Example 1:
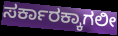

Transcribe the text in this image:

ಸರ್ಕಾರಕ್ಕಾಗಲೀ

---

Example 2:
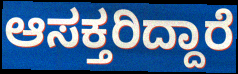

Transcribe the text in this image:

ಆಸಕ್ತರಿದ್ದಾರೆ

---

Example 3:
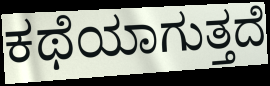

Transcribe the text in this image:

ಕಥೆಯಾಗುತ್ತದೆ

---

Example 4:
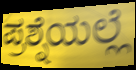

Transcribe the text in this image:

ಪ್ರಶ್ನೆಯಲ್ಲೆ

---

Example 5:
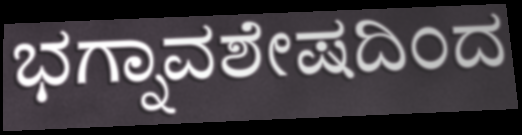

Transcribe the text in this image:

ಭಗ್ನಾವಶೇಷದಿಂದ